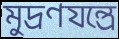
মুদ্রণযন্ত্রে